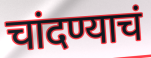
चांदण्याचं